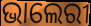
ଭାଲେରୀ